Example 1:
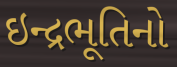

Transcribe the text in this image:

ઇન્દ્રભૂતિનો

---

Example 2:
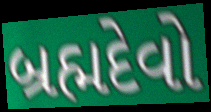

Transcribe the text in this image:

બ્રહ્મદેવો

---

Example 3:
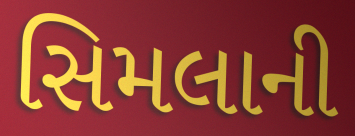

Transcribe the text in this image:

સિમલાની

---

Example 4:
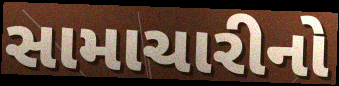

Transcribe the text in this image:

સામાચારીનો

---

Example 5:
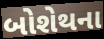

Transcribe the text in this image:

બોશેથના